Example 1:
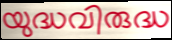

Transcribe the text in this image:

യുദ്ധവിരുദ്ധ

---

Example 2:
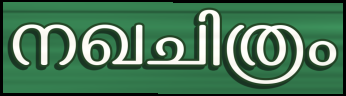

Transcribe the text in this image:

നഖചിത്രം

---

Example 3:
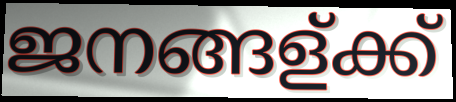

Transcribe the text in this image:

ജനങ്ങള്ക്ക്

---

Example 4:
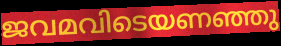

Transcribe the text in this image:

ജവമവിടെയണഞ്ഞു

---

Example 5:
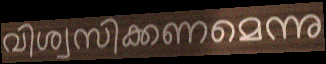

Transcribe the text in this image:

വിശ്വസിക്കണമെന്നു